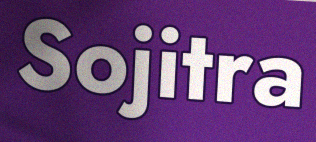
Sojitra